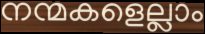
നന്മകളെല്ലാം